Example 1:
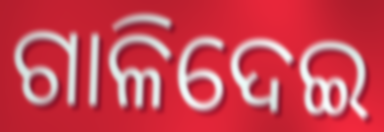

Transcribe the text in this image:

ଗାଳିଦେଇ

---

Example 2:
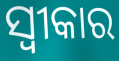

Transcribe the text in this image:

ସ୍ଵୀକାର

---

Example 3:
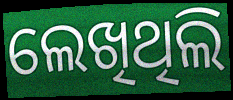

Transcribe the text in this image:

ଲେଖିଥିଲି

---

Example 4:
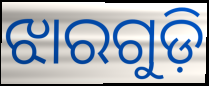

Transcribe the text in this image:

ଝାରଗୁଡ଼ି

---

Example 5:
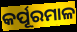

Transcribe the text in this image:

କର୍ପୂରମାଳ